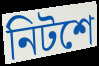
নিটশে